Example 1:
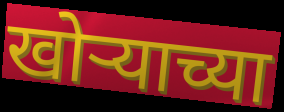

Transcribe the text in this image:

खोऱ्याच्या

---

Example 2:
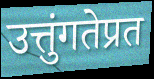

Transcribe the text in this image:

उत्तुंगतेप्रत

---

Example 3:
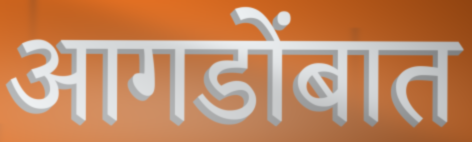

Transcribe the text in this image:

आगडोंबात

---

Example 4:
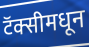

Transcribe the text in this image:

टॅक्सीमधून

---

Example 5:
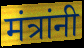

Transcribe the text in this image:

मंत्रांनी